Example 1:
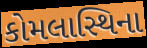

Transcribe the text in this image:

કોમલાસ્થિના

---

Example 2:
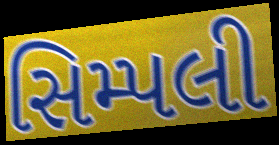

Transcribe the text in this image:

સિમ્પલી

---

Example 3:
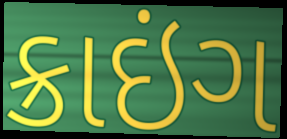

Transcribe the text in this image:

ક્રાઇંગ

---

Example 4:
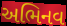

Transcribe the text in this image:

અભિનવ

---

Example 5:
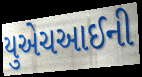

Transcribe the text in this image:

યુએચઆઈની